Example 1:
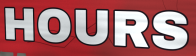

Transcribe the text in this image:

HOURS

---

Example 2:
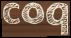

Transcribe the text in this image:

coq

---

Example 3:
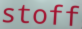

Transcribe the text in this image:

stoff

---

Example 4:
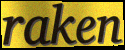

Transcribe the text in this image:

raken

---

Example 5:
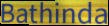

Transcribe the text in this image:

Bathinda